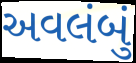
અવલંબું